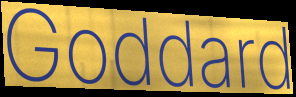
Goddard